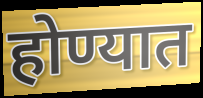
होण्यात